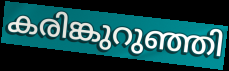
കരിങ്കുറുഞ്ഞി